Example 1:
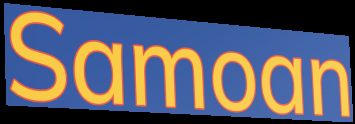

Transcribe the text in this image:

Samoan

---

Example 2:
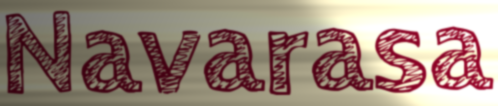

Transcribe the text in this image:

Navarasa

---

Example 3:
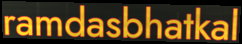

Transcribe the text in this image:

ramdasbhatkal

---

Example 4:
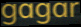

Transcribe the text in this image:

gagar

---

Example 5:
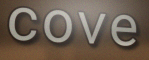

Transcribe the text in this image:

cove